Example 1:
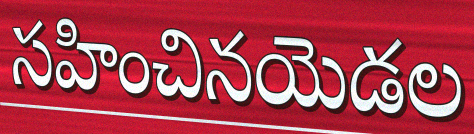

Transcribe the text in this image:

సహించినయెడల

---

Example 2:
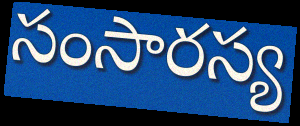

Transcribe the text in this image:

సంసారస్య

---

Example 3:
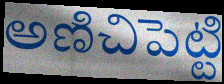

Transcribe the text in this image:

అణిచిపెట్టి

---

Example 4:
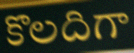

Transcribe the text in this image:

కొలదిగా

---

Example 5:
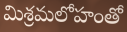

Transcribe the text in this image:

మిశ్రమలోహంతో